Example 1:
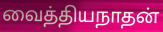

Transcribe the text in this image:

வைத்தியநாதன்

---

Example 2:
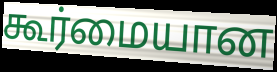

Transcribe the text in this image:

கூர்மையான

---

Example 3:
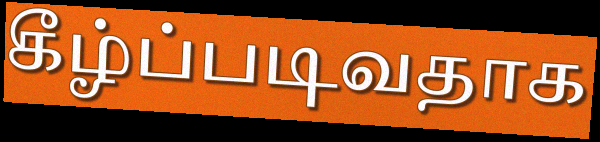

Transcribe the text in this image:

கீழ்ப்படிவதாக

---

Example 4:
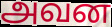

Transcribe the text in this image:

அவன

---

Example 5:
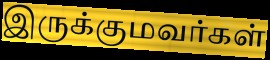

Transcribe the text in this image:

இருக்குமவர்கள்